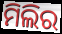
ମିଲିର